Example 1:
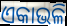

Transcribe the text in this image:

ଏକାଭଳି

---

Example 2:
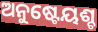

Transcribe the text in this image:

ଅନୁଷ୍ଟେୟଶ୍ଚ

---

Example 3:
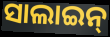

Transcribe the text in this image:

ସାଲାଇନ୍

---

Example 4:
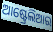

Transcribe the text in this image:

ଆଷ୍ଟ୍ରେଲିଆର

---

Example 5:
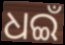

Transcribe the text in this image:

ଧଇଁ